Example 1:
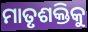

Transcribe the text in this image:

ମାତୃଶକ୍ତିକୁ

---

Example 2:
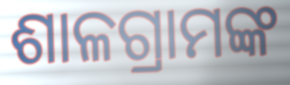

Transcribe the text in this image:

ଶାଳଗ୍ରାମଙ୍କ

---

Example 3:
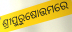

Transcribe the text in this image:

ଶ୍ରୀପୁରୁଷୋତ୍ତମରେ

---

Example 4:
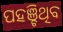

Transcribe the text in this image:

ପହଞ୍ଚିଥିବ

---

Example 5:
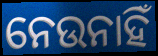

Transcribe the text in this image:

ନେଉନାହିଁ